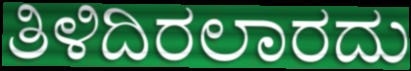
ತಿಳಿದಿರಲಾರದು